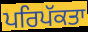
ਪਰਿਪੱਕਤਾ